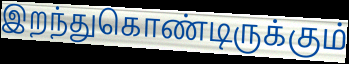
இறந்துகொண்டிருக்கும்